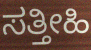
ಸತ್ತೀಹಿ